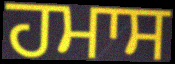
ਹਮਾਸ